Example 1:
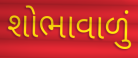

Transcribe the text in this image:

શોભાવાળું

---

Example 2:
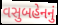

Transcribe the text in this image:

વસુબહેનનું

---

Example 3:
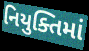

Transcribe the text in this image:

નિયુક્તિમાં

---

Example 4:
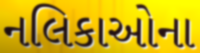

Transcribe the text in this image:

નલિકાઓના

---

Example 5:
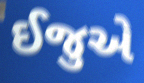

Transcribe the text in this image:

ઈજુએ